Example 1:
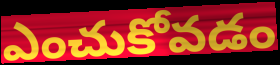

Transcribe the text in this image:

ఎంచుకోవడం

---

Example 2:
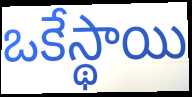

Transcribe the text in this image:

ఒకేస్థాయి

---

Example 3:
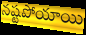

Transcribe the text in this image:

నష్టపోయాయి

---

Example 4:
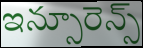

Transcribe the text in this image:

ఇన్సూరెన్స్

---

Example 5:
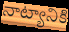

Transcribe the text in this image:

నాట్యానికి